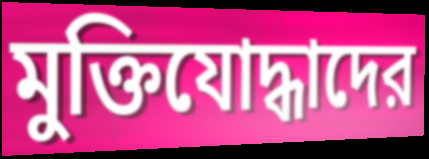
মুক্তিযোদ্ধাদের